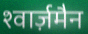
श्वार्ज़मैन